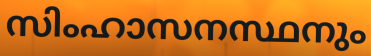
സിംഹാസനസ്ഥനും